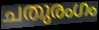
ചതുരംഗം